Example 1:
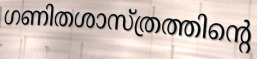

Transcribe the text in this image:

ഗണിതശാസ്ത്രത്തിന്റെ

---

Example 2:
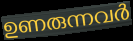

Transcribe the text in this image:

ഉണരുന്നവർ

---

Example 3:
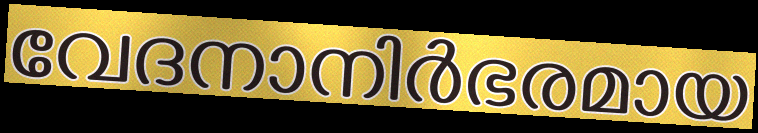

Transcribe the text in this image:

വേദനാനിർഭരമായ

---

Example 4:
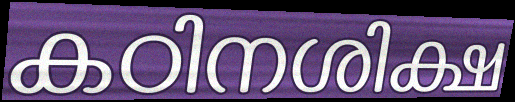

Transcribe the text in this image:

കഠിനശിക്ഷ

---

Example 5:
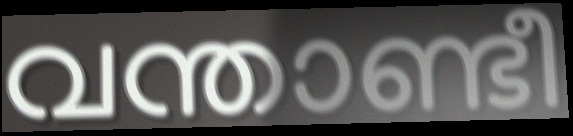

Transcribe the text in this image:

വന്താണ്ടീ